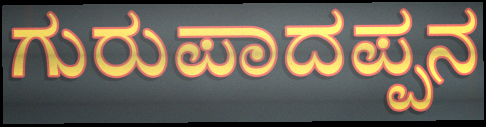
ಗುರುಪಾದಪ್ಪನ